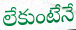
లేకుంటేనే